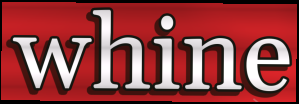
whine